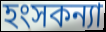
হংসকন্যা